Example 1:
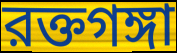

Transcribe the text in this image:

রক্তগঙ্গা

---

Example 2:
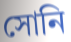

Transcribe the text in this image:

সোনি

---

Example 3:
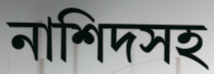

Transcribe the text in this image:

নাশিদসহ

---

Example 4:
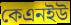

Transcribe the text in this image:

কেএনইউ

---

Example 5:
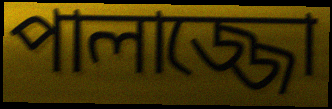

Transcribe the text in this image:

পালাজ্জো